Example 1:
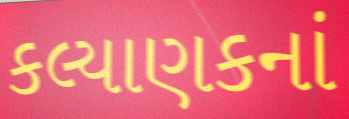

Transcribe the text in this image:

કલ્યાણકનાં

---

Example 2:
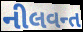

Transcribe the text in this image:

નીલવન્ત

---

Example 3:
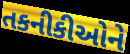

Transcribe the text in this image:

તકનીકીઓને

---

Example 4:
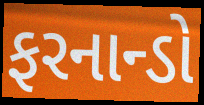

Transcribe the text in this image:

ફરનાન્ડો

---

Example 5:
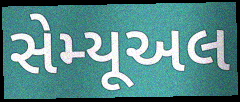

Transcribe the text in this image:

સેમ્યૂઅલ